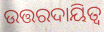
ଉତ୍ତରଦାୟିତ୍ଵ